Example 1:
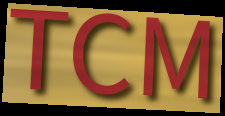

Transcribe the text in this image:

TCM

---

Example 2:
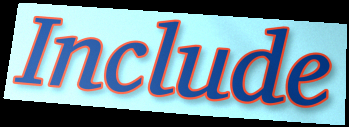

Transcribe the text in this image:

Include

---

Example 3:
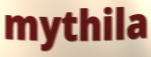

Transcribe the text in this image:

mythila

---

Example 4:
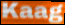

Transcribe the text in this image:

Kaag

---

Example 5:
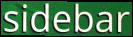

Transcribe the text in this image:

sidebar